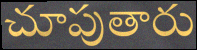
చూపుతారు